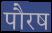
पौरष